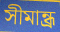
সীমান্ধ্র